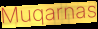
Muqarnas